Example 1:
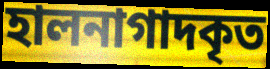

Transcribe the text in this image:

হালনাগাদকৃত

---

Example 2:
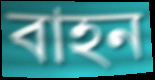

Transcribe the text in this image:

বাহন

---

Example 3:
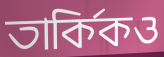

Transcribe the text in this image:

তার্কিকও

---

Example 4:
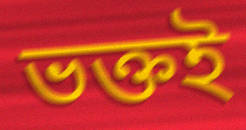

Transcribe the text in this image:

ভক্তই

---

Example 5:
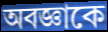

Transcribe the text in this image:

অবজ্ঞাকে